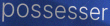
possesser